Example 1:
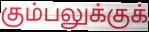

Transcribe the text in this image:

கும்பலுக்குக்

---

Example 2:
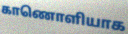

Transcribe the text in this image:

காணொளியாக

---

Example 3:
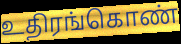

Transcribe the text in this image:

உதிரங்கொண்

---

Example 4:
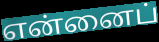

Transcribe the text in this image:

என்னைப்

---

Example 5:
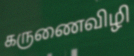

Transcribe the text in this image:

கருணைவிழி